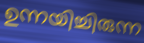
ഉന്നയിച്ചിരുന്ന